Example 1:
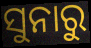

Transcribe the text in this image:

ସୁନାରୁ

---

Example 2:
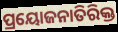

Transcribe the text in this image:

ପ୍ରୟୋଜନାତିରିକ୍ତ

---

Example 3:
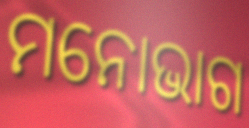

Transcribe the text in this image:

ମନୋଭାଗ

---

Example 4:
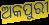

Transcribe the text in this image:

ଅକପୁରୀ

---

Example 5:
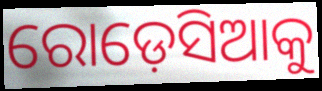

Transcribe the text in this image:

ରୋଡ଼େସିଆକୁ